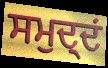
ਸਮੁਦ੍ਦਂ